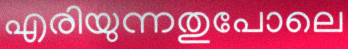
എരിയുന്നതുപോലെ